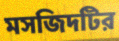
মসজিদটির